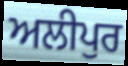
ਅਲੀਪੁਰ